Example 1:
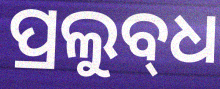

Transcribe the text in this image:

ପ୍ରଲୁବ୍‌ଧ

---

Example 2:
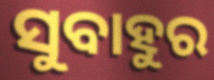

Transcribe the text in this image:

ସୁବାହୁର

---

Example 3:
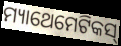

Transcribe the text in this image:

ମ୍ୟାଥେମେଟିକସ୍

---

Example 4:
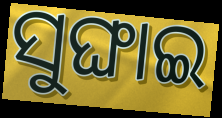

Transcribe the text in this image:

ସୁଙ୍ଘାଇ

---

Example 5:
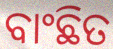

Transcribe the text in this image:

ବାଂଛିତ